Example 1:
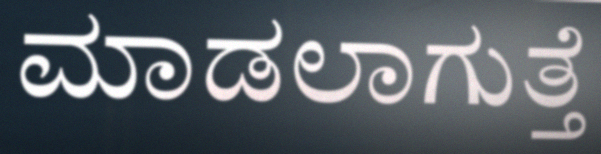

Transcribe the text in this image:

ಮಾಡಲಾಗುತ್ತೆ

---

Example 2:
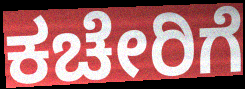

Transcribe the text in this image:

ಕಚೇರಿಗೆ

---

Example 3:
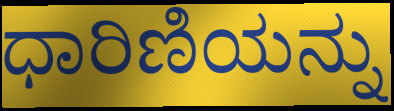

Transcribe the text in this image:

ಧಾರಿಣಿಯನ್ನು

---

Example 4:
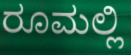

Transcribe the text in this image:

ರೂಮಲ್ಲಿ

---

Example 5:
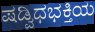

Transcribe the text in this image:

ಷಡ್ವಿಧಭಕ್ತಿಯ